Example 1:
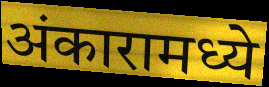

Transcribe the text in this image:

अंकारामध्ये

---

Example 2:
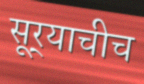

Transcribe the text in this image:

सूर्याचीच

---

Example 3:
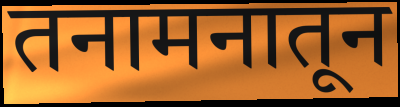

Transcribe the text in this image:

तनामनातून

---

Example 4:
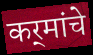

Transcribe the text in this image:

कर्मांचे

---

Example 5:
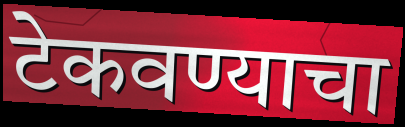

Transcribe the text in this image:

टेकवण्याचा